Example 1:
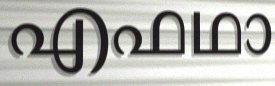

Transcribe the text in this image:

എഫഥാ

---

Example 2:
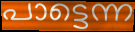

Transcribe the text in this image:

പാട്ടെന്ന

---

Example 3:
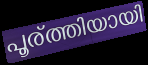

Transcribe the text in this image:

പൂര്ത്തിയായി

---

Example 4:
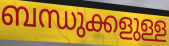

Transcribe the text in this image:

ബന്ധുക്കളുള്ള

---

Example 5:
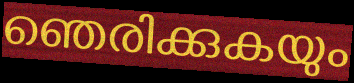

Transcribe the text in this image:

ഞെരിക്കുകയും